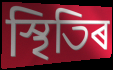
স্থিতিৰ